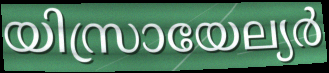
യിസ്രായേല്യർ